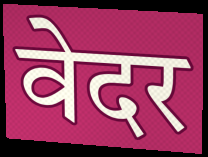
वेदर